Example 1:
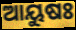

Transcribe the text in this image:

ଆୟୁଷଃ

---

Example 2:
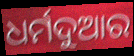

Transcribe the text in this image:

ଧର୍ମଦୁଆର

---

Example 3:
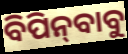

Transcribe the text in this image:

ବିପିନ୍‌ବାବୁ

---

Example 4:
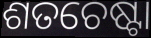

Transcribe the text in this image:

ଶତଚେଷ୍ଟା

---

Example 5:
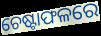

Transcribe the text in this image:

ଚେଷ୍ଟାଫଳରେ